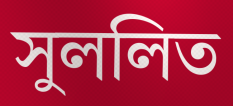
সুললিত